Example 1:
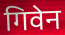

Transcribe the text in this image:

गिवेन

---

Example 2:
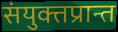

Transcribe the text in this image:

संयुक्तप्रान्त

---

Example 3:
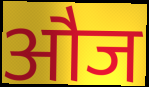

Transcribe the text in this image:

औज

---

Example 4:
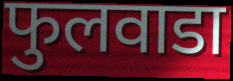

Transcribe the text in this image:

फुलवाडा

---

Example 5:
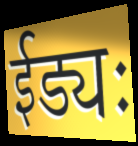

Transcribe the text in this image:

ईड्यः